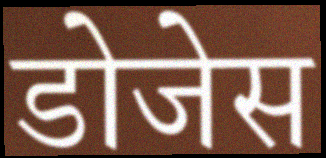
डोजेस